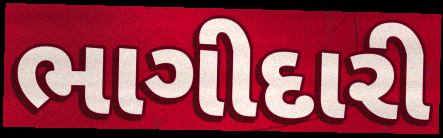
ભાગીદારી